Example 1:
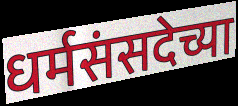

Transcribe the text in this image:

धर्मसंसदेच्या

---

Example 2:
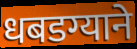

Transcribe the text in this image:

धबडग्याने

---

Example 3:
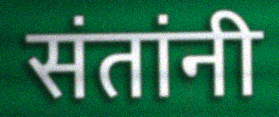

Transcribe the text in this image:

संतांनी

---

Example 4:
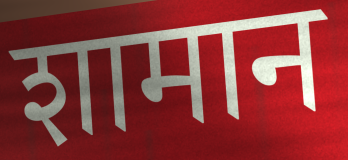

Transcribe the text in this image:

शामान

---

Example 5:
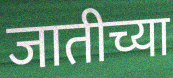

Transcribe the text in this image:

जातीच्या